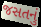
જસતનું